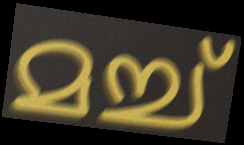
മച്ച്